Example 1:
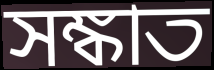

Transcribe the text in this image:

সঙ্কাত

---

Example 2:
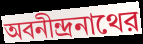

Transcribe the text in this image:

অবনীন্দ্রনাথের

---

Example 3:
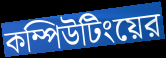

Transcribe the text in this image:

কম্পিউটিংয়ের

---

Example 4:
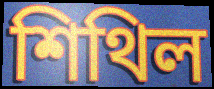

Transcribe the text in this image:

শিথিল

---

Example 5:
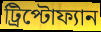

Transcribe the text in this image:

ট্রিপ্টোফ্যান